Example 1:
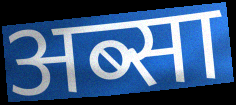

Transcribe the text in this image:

अब्सा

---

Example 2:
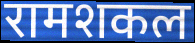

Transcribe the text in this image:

रामशकल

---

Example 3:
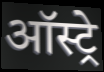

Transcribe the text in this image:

ऑस्ट्रे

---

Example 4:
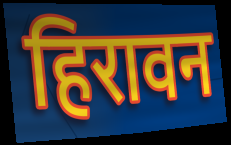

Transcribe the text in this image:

हिरावन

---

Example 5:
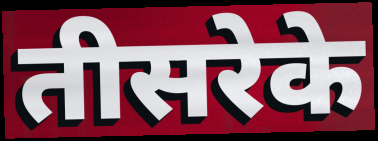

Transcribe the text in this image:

तीसरेके